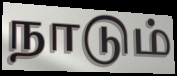
நாடும்